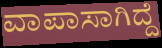
ವಾಪಾಸಾಗಿದ್ದೆ